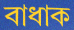
বাধাক